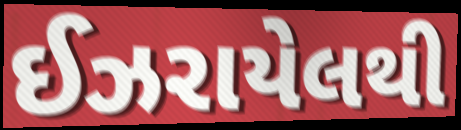
ઈઝરાયેલથી